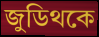
জুডিথকে